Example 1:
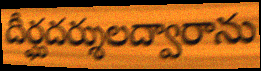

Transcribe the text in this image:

దీర్ఘదర్శులద్వారాను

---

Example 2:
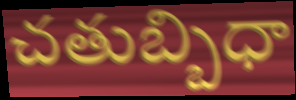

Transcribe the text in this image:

చతుబ్బిధా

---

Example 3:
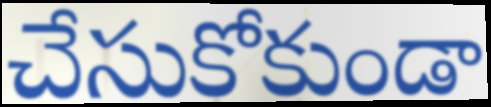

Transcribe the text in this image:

చేసుకోకుండా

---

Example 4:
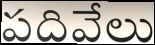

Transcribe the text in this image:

పదివేలు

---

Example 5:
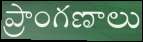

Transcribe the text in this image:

ప్రాంగణాలు